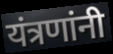
यंत्रणांनी